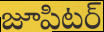
జూపిటర్